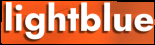
lightblue